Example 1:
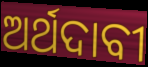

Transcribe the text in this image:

ଅର୍ଥଦାବୀ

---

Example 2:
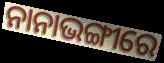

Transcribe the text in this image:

ନାନାଭଙ୍ଗୀରେ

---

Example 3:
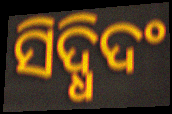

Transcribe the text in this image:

ସିଦ୍ଧିଦଂ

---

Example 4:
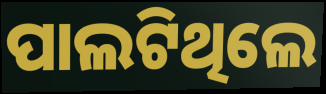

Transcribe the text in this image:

ପାଲଟିଥିଲେ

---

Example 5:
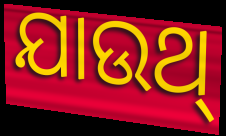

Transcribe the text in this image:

ଯାଉଥ୍